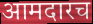
आमदारच